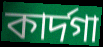
কাৰ্দগা